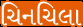
ચિનચિલા